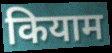
कियाम